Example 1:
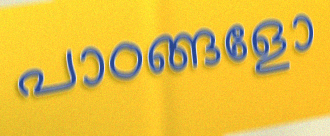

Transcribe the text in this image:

പാഠങ്ങളോ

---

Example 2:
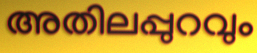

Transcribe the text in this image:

അതിലപ്പുറവും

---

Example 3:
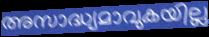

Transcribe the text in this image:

അസാദ്ധ്യമാവുകയില്ല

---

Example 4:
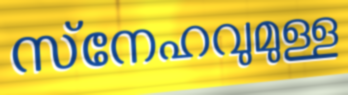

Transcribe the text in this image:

സ്‌നേഹവുമുള്ള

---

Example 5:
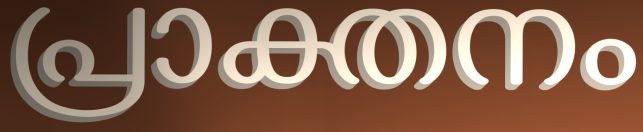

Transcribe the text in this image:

പ്രാക്തനം